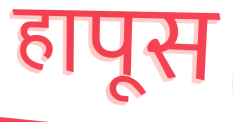
हापूस